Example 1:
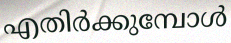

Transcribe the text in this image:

എതിർക്കുമ്പോൾ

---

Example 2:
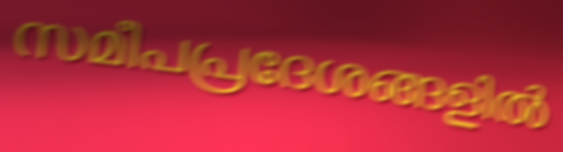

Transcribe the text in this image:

സമീപപ്രദേശങ്ങളിൽ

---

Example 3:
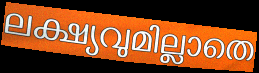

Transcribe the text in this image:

ലക്ഷ്യവുമില്ലാതെ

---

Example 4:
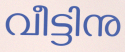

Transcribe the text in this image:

വീട്ടിനു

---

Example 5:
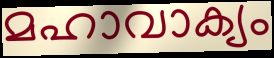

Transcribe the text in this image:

മഹാവാക്യം